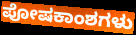
ಪೋಷಕಾಂಶಗಳು